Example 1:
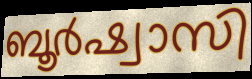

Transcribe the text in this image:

ബൂർഷ്വാസി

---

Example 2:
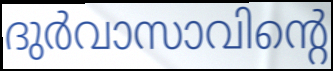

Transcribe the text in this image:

ദുർവാസാവിന്റെ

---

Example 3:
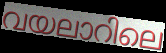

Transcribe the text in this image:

വയലാറിലെ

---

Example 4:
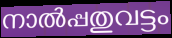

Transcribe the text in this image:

നാൽപ്പതുവട്ടം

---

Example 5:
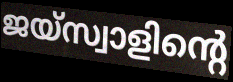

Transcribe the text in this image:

ജയ്സ്വാളിന്റെ